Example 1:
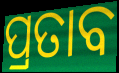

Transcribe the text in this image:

ପ୍ରତାବ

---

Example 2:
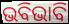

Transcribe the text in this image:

ଭବିଭାବି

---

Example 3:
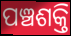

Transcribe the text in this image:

ପଞ୍ଚଶକ୍ତି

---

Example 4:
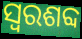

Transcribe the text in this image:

ସ୍ୱରଶବ୍ଦ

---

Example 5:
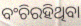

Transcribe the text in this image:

ବଂଚିରହିଥିବା